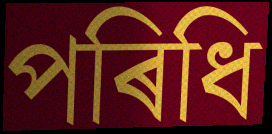
পৰিধি